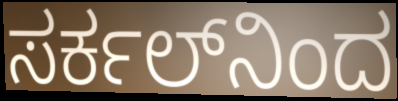
ಸರ್ಕಲ್‌ನಿಂದ